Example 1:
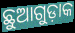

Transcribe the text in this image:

ଛୁଆଗୁଡ଼ାକ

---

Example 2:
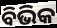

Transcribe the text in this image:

ବିଭିକ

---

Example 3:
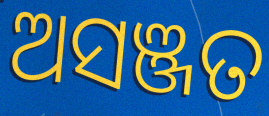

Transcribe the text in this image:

ଅସଞ୍ଜତ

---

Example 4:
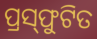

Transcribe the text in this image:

ପ୍ରସ୍‌ଫୁଟିତ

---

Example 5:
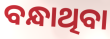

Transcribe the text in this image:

ବନ୍ଧାଥିବା